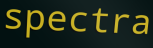
spectra